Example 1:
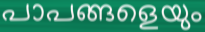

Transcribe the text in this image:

പാപങ്ങളെയും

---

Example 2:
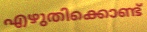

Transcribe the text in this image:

എഴുതിക്കൊണ്ട്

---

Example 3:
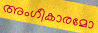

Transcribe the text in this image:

അംഗീകാരമോ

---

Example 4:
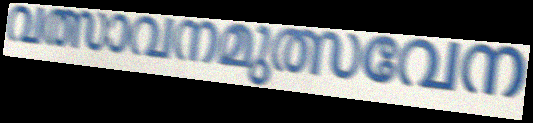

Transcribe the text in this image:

വത്സാവനമുത്സവേന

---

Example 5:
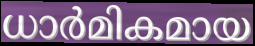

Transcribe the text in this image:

ധാർമികമായ